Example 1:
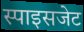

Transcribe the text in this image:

स्‍पाइसजेट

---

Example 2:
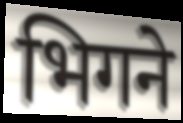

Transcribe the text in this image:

भिगने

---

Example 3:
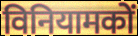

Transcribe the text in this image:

विनियामकों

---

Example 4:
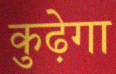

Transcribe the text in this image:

कुढ़ेगा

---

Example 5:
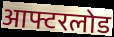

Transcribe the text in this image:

आफ्टरलोड